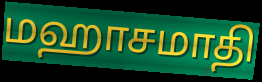
மஹாசமாதி